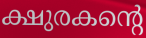
ക്ഷുരകന്റെ